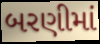
બરણીમાં